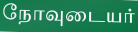
நோவுடையர்